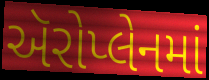
ઍરોપ્લેનમાં